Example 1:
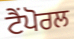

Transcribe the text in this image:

ਟੈਂਪੋਰਲ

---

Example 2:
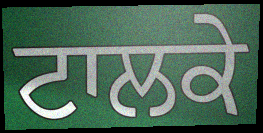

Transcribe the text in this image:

ਟਾਲਕੇ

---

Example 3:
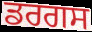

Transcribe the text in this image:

ਡਰਗਸ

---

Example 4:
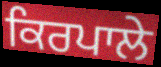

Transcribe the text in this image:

ਕਿਰਪਾਲੇ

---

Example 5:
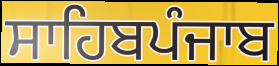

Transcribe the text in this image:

ਸਾਹਿਬਪੰਜਾਬ